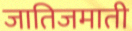
जातिजमाती